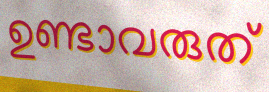
ഉണ്ടാവരുത്